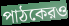
পাঠকেরও